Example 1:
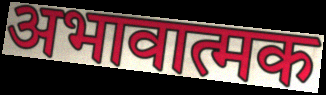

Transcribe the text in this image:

अभावात्मक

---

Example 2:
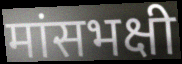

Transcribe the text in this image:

मांसभक्षी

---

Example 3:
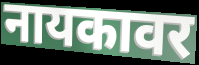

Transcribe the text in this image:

नायकावर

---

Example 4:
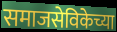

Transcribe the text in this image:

समाजसेविकेच्या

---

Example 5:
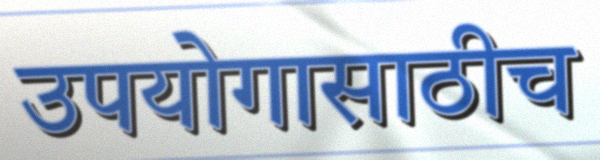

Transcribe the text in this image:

उपयोगासाठीच